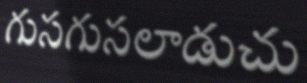
గుసగుసలాడుచు